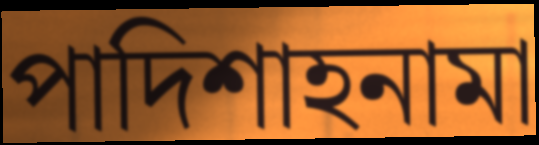
পাদিশাহনামা